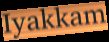
Iyakkam